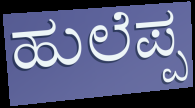
ಹುಲೆಪ್ಪ